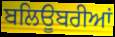
ਬਲਿਊਬਰੀਆਂ